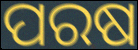
ପରଷ